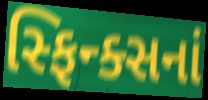
સ્ફિન્ક્સનાં